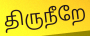
திருநீறே